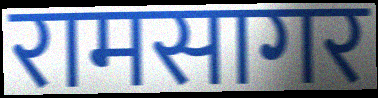
रामसागर